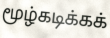
மூழ்கடிக்கக்